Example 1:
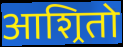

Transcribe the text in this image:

आश्रितो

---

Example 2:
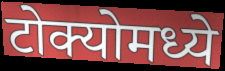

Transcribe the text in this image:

टोक्योमध्ये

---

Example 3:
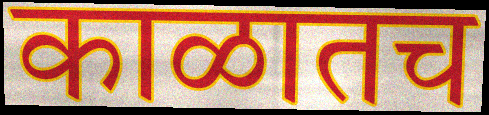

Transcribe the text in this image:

काळातच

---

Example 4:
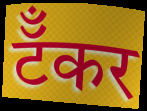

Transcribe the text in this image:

टॅँकर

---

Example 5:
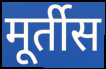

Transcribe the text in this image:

मूर्तीस